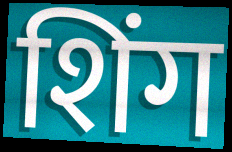
शिंग